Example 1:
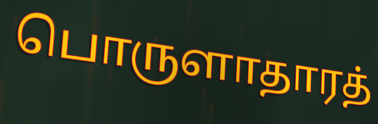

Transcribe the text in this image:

பொருளாதாரத்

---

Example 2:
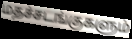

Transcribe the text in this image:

மதச்சடங்குகளும்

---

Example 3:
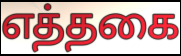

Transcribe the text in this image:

எத்தகை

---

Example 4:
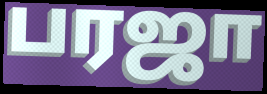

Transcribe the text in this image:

பரஜா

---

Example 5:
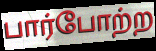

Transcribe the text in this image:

பார்போற்ற